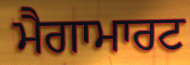
ਮੈਗਾਮਾਰਟ